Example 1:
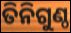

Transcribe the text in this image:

ତିନିଗୁଣ୍ଠ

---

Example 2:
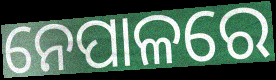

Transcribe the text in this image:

ନେପାଳରେ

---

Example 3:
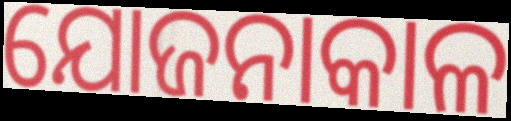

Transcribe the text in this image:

ଯୋଜନାକାଳ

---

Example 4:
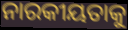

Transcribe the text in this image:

ନାରକୀୟତାକୁ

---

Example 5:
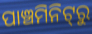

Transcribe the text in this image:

ପାଞ୍ଚମିନିଟ୍‌ରୁ